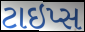
ટાઇપ્સ